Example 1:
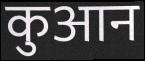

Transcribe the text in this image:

कुआन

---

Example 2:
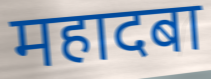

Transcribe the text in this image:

महादबा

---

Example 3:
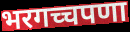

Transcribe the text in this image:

भरगच्चपणा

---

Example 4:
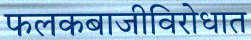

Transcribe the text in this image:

फलकबाजीविरोधात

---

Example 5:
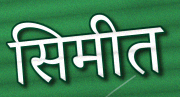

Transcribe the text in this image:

सिमीत